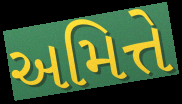
અમિત્તે